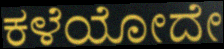
ಕಳೆಯೋದೇ